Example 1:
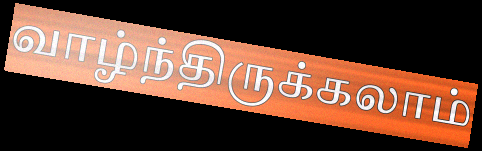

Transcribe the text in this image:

வாழ்ந்திருக்கலாம்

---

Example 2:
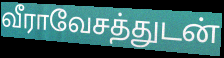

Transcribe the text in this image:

வீராவேசத்துடன்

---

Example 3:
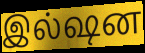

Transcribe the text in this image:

இல்ஷன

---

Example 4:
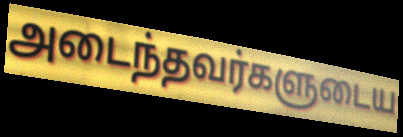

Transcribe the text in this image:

அடைந்தவர்களுடைய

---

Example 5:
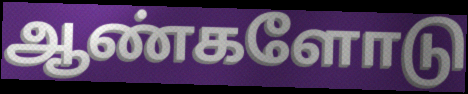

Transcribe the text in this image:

ஆண்களோடு